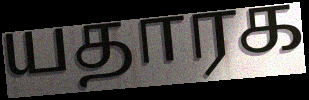
யதாரக